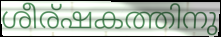
ശീര്ഷകത്തിനു